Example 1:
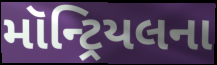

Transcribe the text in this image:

મૉન્ટ્રિયલના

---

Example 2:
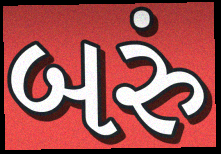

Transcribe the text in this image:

બરું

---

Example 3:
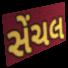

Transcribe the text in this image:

સેંચલ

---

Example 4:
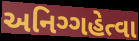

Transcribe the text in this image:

અનિગ્ગહેત્વા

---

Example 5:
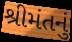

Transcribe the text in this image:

શ્રીમંતનું